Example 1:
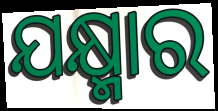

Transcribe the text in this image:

ଯକ୍ଷ୍ମାର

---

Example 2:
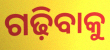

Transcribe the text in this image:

ଗଢ଼ିବାକୁ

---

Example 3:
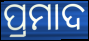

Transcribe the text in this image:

ପ୍ରମାଦ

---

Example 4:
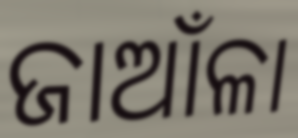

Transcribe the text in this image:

ଜାଆଁଳା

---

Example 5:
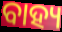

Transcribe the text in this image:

ବାହ୍ୟ